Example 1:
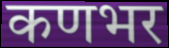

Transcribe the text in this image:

कणभर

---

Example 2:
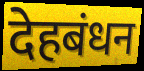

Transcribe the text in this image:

देहबंधन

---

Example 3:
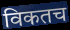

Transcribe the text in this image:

विकतच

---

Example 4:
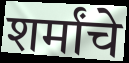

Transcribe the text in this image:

शर्मांचे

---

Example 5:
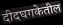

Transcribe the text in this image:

दीदघगकेतील